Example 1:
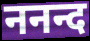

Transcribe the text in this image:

ननन्द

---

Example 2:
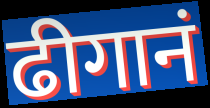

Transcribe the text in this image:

ढीगानं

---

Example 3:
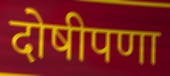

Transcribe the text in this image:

दोषीपणा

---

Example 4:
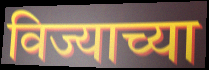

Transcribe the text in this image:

विज्याच्या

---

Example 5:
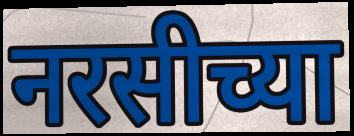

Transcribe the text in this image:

नरसीच्या